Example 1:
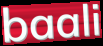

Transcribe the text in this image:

baali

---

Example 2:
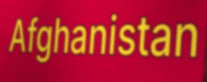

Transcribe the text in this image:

Afghanistan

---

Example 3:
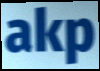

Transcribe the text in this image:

akp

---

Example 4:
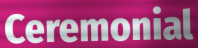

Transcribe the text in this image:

Ceremonial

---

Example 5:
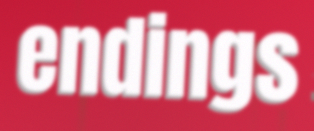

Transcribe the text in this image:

endings